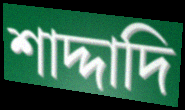
শাদ্দাদি